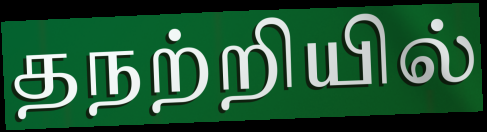
தநற்றியில்